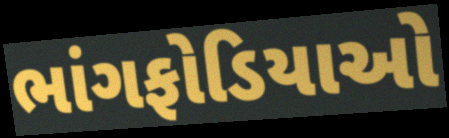
ભાંગફોડિયાઓ